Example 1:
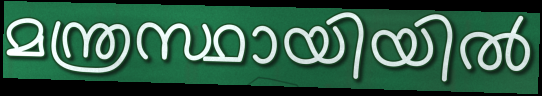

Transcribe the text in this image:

മന്ത്രസ്ഥായിയിൽ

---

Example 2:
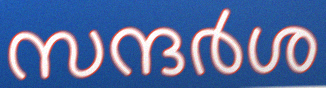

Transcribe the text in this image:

സന്ദർശ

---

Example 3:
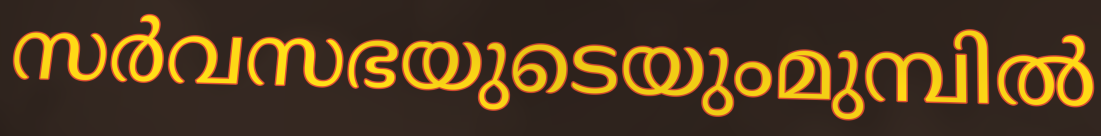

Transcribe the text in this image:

സർവസഭയുടെയുംമുമ്പിൽ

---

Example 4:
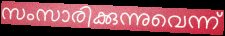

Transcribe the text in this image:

സംസാരിക്കുന്നുവെന്ന്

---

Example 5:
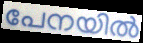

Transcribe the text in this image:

പേനയിൽ